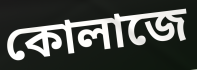
কোলাজে